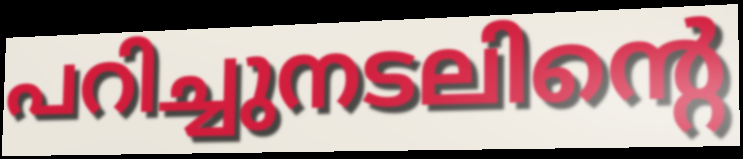
പറിച്ചുനടലിന്റെ